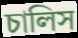
চালিস